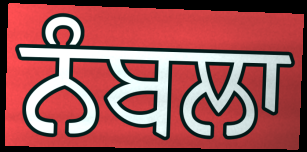
ਨੰਬਲਾ